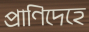
প্রাণিদেহে